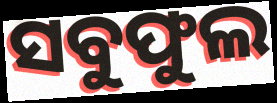
ସବୁଫୁଲ